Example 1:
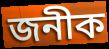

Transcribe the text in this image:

জনীক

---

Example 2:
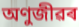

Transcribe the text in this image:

অণুজীৱৰ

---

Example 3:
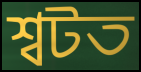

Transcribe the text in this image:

শ্বটত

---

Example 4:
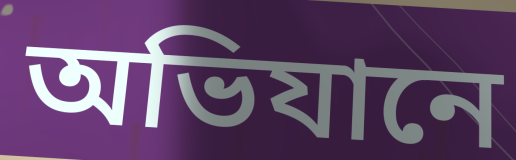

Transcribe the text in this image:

অভিযানে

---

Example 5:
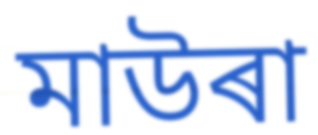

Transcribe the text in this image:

মাউৰা